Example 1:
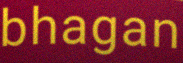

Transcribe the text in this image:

bhagan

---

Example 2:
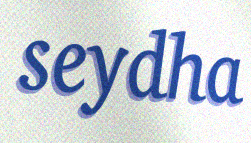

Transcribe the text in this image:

seydha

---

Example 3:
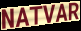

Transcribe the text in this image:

NATVAR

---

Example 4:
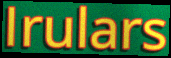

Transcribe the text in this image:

Irulars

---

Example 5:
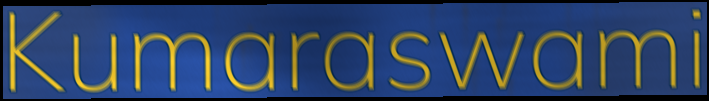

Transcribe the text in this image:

Kumaraswami